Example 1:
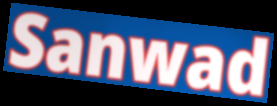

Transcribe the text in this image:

Sanwad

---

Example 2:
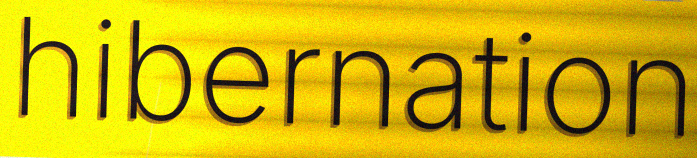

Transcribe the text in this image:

hibernation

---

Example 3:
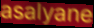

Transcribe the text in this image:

asalyane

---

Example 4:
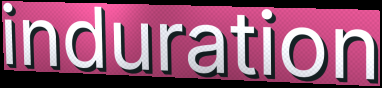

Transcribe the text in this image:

induration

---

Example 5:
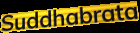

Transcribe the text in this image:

Suddhabrata